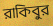
রাকিবুর